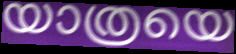
യാത്രയെ